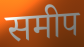
समीप